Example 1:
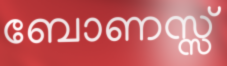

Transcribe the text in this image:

ബോണസ്സ്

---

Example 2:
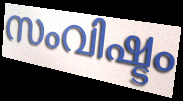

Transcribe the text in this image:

സംവിഷ്ടം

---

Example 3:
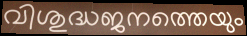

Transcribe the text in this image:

വിശുദ്ധജനത്തെയും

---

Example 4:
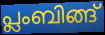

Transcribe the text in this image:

പ്ലംബിങ്ങ്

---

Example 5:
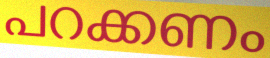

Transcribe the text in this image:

പറക്കണം